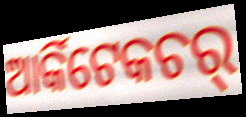
ଆର୍କିଟେକଚର୍